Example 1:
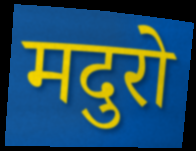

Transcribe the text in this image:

मदुरो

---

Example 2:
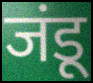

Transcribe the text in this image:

जंडू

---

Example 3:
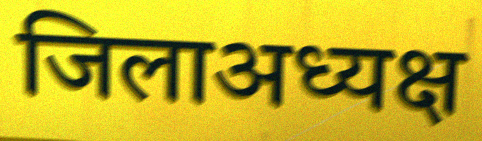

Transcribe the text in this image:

जिलाअध्यक्ष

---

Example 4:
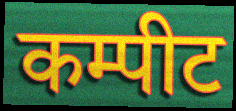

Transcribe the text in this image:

कम्पीट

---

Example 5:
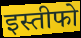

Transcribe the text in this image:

इस्तीफो